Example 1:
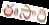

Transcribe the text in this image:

ఈసారి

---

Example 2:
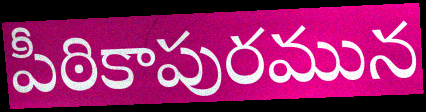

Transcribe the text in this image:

పీఠికాపురమున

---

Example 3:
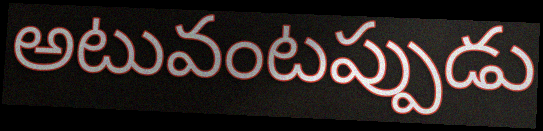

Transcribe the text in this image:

అటువంటప్పుడు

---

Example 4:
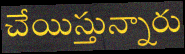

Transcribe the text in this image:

చేయిస్తున్నారు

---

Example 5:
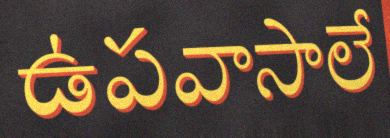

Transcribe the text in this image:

ఉపవాసాలే